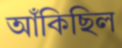
আঁকিছিল